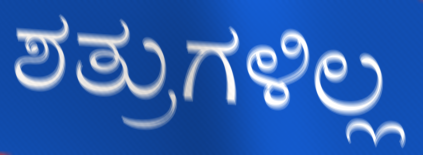
ಶತ್ರುಗಳಿಲ್ಲ